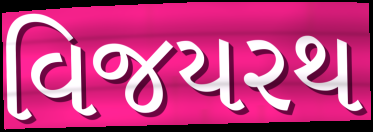
વિજયરથ